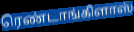
ரெண்டாங்கிளாஸ்